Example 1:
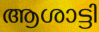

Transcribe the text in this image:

ആശാട്ടി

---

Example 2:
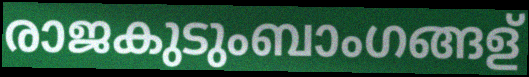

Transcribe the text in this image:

രാജകുടുംബാംഗങ്ങള്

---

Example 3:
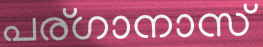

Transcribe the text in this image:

പര്ഗാനാസ്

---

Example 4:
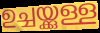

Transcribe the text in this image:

ഉച്ചയ്ക്കുള്ള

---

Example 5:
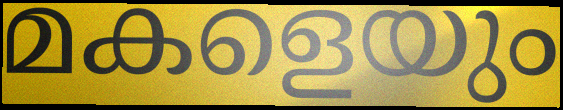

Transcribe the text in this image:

മകളെയും